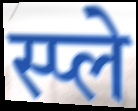
स्प्ले